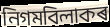
নিগমবিলাকৰ